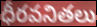
ధీరవనితలు